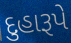
દુહારૂપે